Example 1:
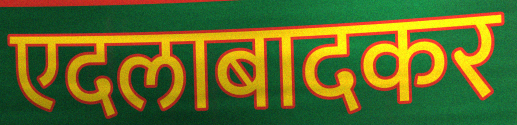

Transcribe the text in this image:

एदलाबादकर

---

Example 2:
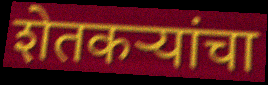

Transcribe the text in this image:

शेतकऱ्यांचा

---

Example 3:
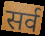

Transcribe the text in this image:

सर्व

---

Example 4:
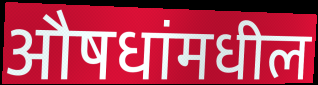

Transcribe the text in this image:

औषधांमधील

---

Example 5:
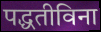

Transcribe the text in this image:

पद्धतीविना